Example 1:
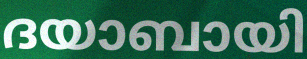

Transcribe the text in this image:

ദയാബായി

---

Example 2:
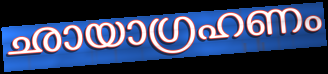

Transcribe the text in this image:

ഛായാഗ്രഹണം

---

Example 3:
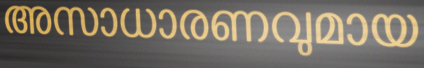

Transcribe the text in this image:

അസാധാരണവുമായ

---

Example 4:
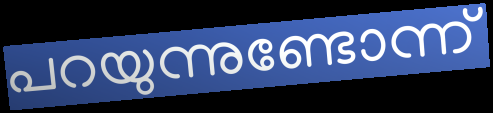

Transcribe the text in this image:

പറയുന്നുണ്ടോന്ന്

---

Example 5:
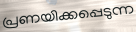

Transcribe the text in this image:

പ്രണയിക്കപ്പെടുന്ന